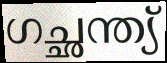
ഗച്ഛന്ത്യ്